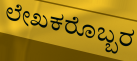
ಲೇಖಕರೊಬ್ಬರ